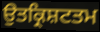
ਉਤਕ੍ਰਿਸ਼ਟਤਮ